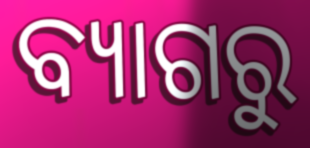
ବ୍ୟାଗରୁ